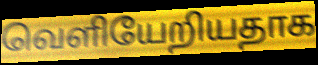
வெளியேறியதாக